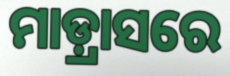
ମାଡ଼୍ରାସରେ